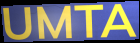
UMTA